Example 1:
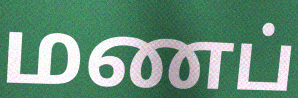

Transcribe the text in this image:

மணப்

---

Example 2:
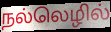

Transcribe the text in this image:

நல்லெழில்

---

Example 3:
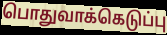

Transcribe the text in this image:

பொதுவாக்கெடுப்பு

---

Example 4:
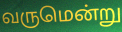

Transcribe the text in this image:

வருமென்று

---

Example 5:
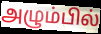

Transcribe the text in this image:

அழும்பில்